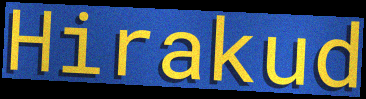
Hirakud